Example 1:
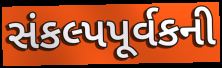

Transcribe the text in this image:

સંકલ્પપૂર્વકની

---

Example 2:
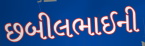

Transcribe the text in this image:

છબીલભાઈની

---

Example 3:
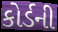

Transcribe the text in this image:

કોર્ડની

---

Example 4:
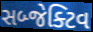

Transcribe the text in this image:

સબ્જેક્ટિવ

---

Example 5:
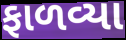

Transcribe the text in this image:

ફાળવ્યા